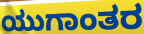
ಯುಗಾಂತರ